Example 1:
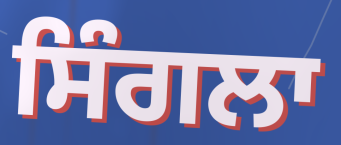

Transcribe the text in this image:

ਸਿੰਗਲਾ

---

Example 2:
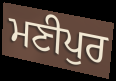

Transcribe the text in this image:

ਮਣੀਪੁਰ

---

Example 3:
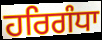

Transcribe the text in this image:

ਹਰਿਗੰਧਾ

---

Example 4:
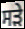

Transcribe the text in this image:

ਸੜੇ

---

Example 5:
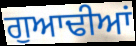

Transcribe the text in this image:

ਗੁਆਢੀਆਂ